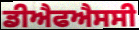
ਡੀਐਫਐਸਸੀ